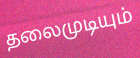
தலைமுடியும்